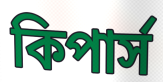
কিপার্স